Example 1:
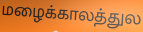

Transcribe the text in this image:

மழைக்காலத்துல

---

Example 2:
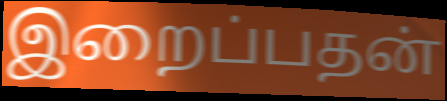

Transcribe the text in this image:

இறைப்பதன்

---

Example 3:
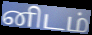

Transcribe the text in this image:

னிடம்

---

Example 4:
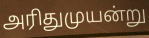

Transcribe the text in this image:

அரிதுமுயன்று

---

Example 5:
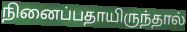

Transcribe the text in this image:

நினைப்பதாயிருந்தால்